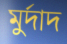
মুৰ্দাদ